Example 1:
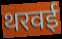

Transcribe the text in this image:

थरवई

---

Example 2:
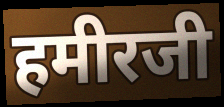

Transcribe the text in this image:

हमीरजी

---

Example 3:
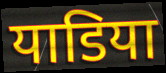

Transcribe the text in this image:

याडिया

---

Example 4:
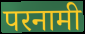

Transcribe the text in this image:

परनामी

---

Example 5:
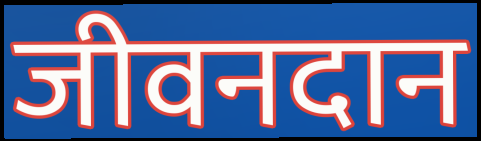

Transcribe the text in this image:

जीवनदान